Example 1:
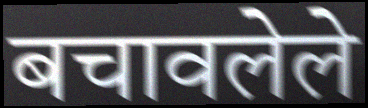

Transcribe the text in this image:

बचावलेले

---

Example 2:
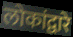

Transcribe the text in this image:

लोकांद्वारे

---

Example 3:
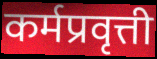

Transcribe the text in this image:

कर्मप्रवृत्ती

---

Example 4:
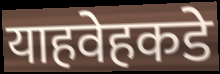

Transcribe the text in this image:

याहवेहकडे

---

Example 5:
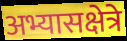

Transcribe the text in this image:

अभ्यासक्षेत्रे